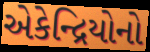
એકેન્દ્રિયોનો